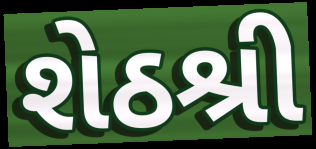
શેઠશ્રી